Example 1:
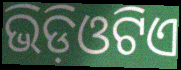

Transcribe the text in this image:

ଭିଡ଼ିଓଟିଏ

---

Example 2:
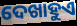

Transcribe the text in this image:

ଦେଖାହୁଏ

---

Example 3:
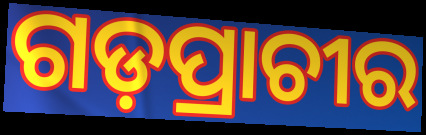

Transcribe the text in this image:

ଗଡ଼ପ୍ରାଚୀର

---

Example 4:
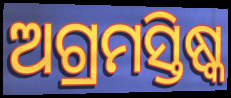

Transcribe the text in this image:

ଅଗ୍ରମସ୍ତିଷ୍କ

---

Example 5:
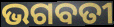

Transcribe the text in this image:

ଭଗବତୀ